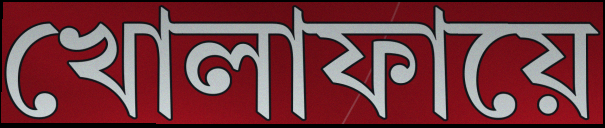
খোলাফায়ে